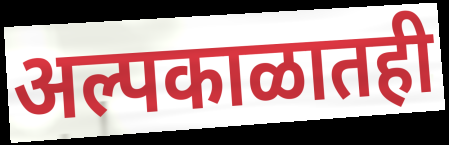
अल्पकाळातही